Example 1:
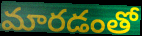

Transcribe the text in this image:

మారడంతో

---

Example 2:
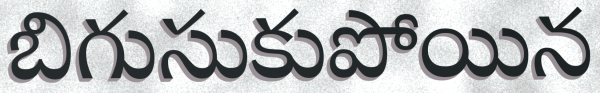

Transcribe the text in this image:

బిగుసుకుపోయిన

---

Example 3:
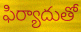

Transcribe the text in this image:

ఫిర్యాదుతో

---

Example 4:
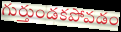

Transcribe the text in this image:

గుర్తుండకపోవడం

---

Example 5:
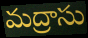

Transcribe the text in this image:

మద్రాసు